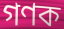
গণক